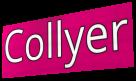
Collyer